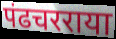
पंढचरराया